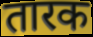
तारक